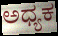
ಅಧ್ಯಕ